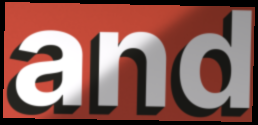
and